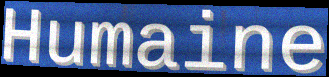
Humaine